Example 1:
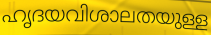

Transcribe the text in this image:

ഹൃദയവിശാലതയുള്ള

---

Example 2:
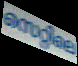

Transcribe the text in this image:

സെറ്റിലെ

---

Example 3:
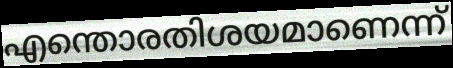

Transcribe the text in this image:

എന്തൊരതിശയമാണെന്ന്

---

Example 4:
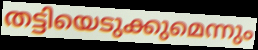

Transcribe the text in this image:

തട്ടിയെടുക്കുമെന്നും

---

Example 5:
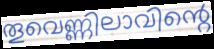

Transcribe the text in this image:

തൂവെണ്ണിലാവിന്റെ